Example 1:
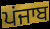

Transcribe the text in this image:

ਪਂਜਾਬ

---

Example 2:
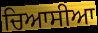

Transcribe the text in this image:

ਚਿਆਸੀਆ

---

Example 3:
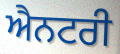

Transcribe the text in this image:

ਐਨਟਰੀ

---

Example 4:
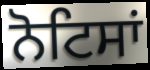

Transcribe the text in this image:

ਨੋਟਿਸਾਂ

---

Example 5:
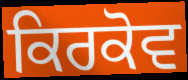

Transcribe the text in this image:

ਕਿਰਕੋਵ